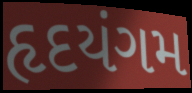
હૃદયંગમ